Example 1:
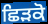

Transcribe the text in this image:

ਛਿੜਕੋ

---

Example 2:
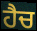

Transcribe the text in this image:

ਹੈਚ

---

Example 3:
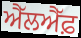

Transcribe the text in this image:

ਐੱਲਐੱਫ਼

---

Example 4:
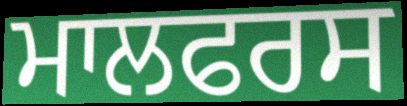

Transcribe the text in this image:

ਮਾਲਫਰਸ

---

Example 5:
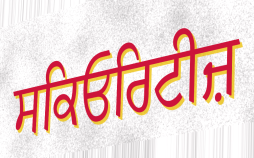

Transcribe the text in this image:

ਸਕਿਓਰਿਟੀਜ਼